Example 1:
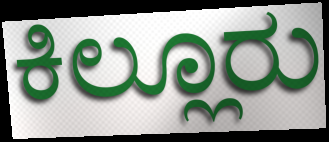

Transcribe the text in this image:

ಕಿಲ್ಲೂರು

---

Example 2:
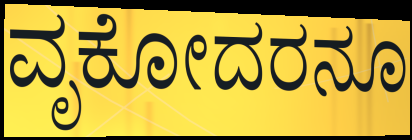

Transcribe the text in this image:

ವೃಕೋದರನೂ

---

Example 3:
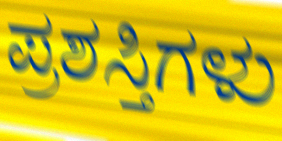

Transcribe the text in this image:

ಪ್ರಶಸ್ತಿಗಳು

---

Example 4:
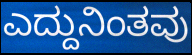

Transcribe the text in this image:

ಎದ್ದುನಿಂತವು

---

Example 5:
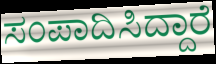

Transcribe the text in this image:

ಸಂಪಾದಿಸಿದ್ದಾರೆ